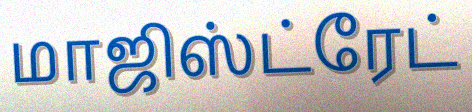
மாஜிஸ்ட்ரேட்